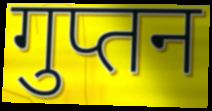
गुप्तन